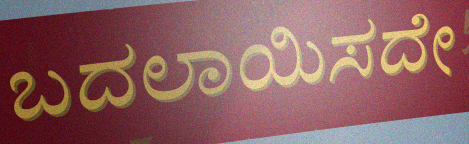
ಬದಲಾಯಿಸದೇ